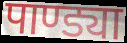
पाण्ड्या